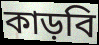
কাড়বি